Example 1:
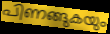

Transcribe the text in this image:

പിണങ്ങുകയും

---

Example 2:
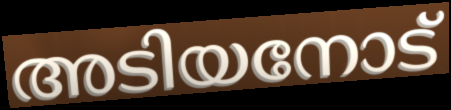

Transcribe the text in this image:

അടിയനോട്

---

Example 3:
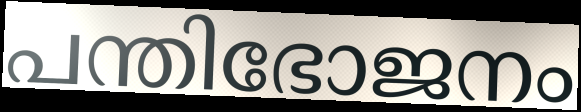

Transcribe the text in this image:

പന്തിഭോജനം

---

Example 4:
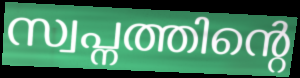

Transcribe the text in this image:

സ്വപ്നത്തിന്റെ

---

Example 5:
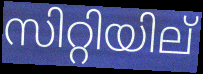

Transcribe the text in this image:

സിറ്റിയില്